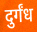
दुर्गंध